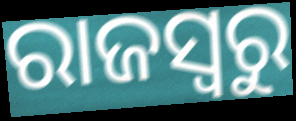
ରାଜସ୍ବରୁ